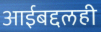
आईबद्दलही